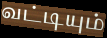
வட்டியும்